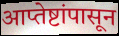
आप्तेष्टांपासून